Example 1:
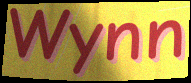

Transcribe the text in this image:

Wynn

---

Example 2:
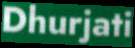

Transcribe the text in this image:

Dhurjati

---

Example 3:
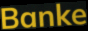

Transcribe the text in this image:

Banke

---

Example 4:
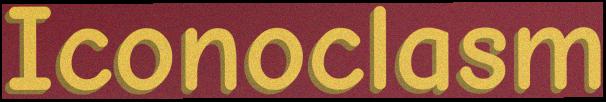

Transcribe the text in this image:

Iconoclasm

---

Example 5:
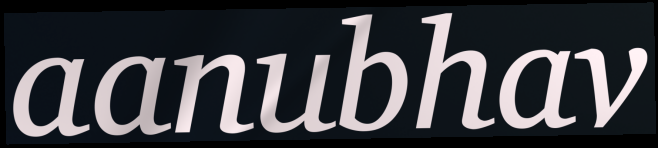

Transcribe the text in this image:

aanubhav